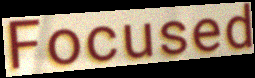
Focused